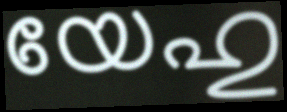
യേഹു